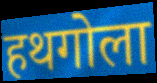
हथगोला